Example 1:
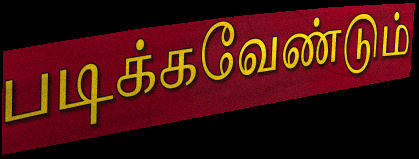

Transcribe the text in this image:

படிக்கவேண்டும்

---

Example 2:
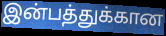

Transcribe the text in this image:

இன்பத்துக்கான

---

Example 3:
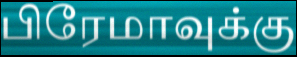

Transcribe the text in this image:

பிரேமாவுக்கு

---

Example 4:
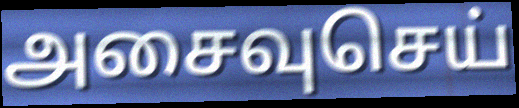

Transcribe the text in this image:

அசைவுசெய்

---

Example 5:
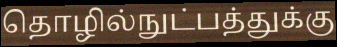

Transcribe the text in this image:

தொழில்நுட்பத்துக்கு